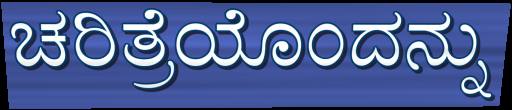
ಚರಿತ್ರೆಯೊಂದನ್ನು